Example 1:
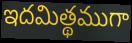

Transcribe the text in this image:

ఇదమిత్థముగా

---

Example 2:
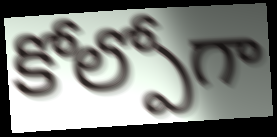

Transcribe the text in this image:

కోల్పోగా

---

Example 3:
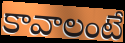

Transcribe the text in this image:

కావాలంటే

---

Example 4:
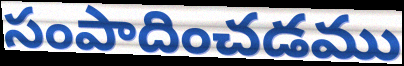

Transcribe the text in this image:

సంపాదించడము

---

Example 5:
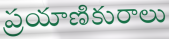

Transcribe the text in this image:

ప్రయాణికురాలు